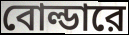
বোল্ডারে